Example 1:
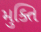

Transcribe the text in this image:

મુક્તિ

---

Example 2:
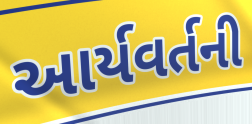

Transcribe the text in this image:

આર્યવર્તની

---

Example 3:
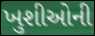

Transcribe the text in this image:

ખુશીઓની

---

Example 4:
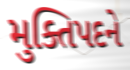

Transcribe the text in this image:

મુક્તિપદને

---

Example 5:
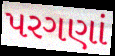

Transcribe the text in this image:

પરગણાં